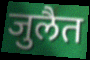
जुलैत